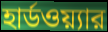
হার্ডওয়্যার